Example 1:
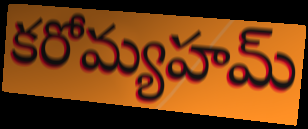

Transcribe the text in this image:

కరోమ్యహమ్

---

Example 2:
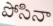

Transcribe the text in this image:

పోసినా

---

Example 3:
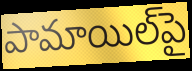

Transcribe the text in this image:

పామాయిల్‌పై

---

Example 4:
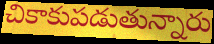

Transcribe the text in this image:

చికాకుపడుతున్నారు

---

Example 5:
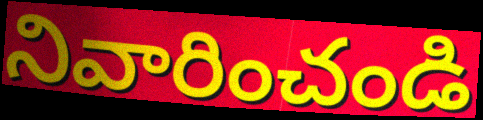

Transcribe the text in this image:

నివారించండి